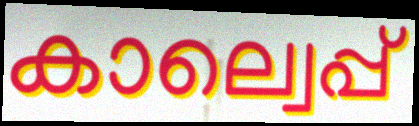
കാല്വെപ്പ്